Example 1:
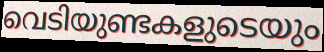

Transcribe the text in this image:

വെടിയുണ്ടകളുടെയും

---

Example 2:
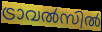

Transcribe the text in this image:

ട്രാവൽസിൽ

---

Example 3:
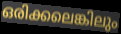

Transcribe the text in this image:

ഒരിക്കലെങ്കിലും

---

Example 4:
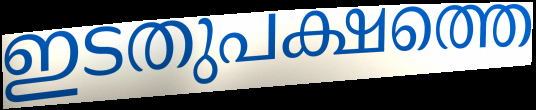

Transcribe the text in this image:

ഇടതുപക്ഷത്തെ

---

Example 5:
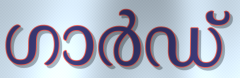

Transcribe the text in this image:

ഗാർഡ്